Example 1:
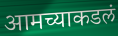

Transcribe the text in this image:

आमच्याकडलं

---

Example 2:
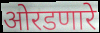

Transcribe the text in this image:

ओरडणारे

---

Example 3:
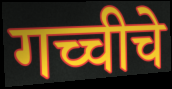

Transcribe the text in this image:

गच्चीचे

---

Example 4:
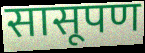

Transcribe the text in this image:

सासूपण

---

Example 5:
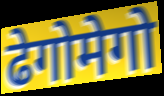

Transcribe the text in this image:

ढेगोमेगो